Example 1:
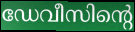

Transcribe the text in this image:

ഡേവീസിന്റെ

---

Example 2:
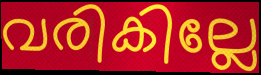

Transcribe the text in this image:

വരികില്ലേ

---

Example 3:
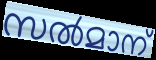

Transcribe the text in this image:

സൽമാന്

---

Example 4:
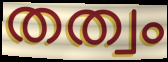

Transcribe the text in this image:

തത്വം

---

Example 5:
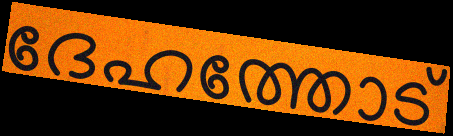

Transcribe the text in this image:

ദേഹത്തോട്